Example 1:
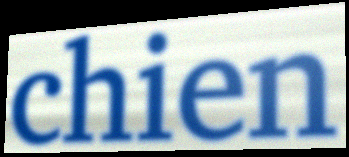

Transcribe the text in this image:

chien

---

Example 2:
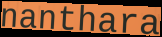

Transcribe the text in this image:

nanthara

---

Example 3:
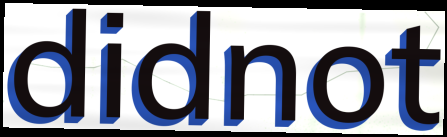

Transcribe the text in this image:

didnot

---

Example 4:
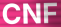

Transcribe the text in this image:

CNF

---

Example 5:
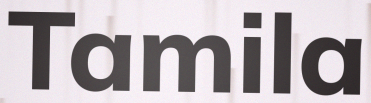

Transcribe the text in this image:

Tamila